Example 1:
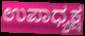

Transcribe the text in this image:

ಉಪಾಧ್ಯಕ್ಷ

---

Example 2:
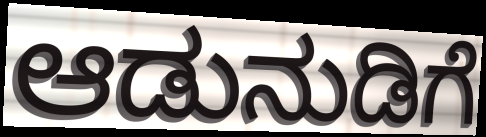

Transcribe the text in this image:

ಆಡುನುಡಿಗೆ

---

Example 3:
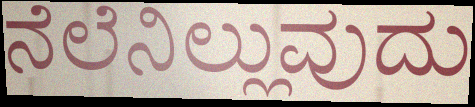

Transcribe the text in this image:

ನೆಲೆನಿಲ್ಲುವುದು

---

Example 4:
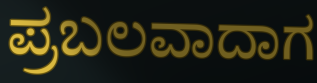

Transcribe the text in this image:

ಪ್ರಬಲವಾದಾಗ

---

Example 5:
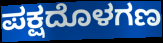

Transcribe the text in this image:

ಪಕ್ಷದೊಳಗಣ